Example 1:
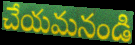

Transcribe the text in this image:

చేయమనండి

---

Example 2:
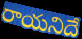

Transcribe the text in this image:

రాయనిదే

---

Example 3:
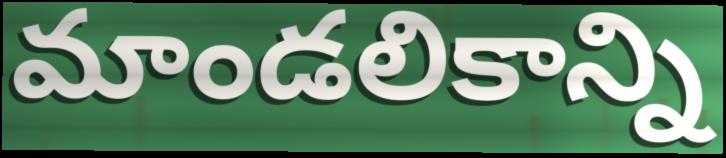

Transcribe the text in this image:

మాండలికాన్ని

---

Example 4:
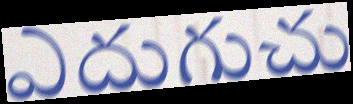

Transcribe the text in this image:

ఎదుగుచు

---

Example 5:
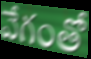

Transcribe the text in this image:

వేగంతో